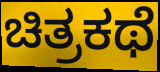
ಚಿತ್ರಕಥೆ